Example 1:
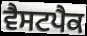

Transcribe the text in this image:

ਵੈਸਟਪੈਕ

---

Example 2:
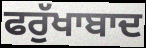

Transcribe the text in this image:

ਫਰੁੱਖਾਬਾਦ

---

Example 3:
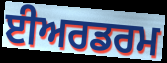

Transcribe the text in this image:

ਈਅਰਡਰਮ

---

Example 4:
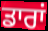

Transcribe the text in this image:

ਡਾਰਾਂ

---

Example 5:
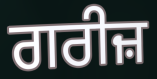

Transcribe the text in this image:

ਗਰੀਜ਼